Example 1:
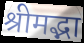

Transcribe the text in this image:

श्रीमद्भा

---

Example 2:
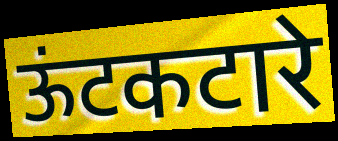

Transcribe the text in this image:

ऊंटकटारे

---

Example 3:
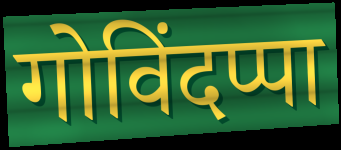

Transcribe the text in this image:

गोविंदप्पा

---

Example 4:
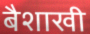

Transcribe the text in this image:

बैशाखी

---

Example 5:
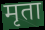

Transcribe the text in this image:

मृता